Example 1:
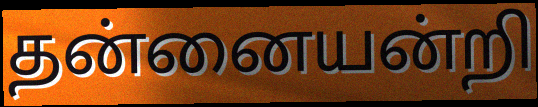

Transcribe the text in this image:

தன்னையன்றி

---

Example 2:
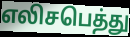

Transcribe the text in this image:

எலிசபெத்து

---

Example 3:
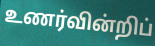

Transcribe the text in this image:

உணர்வின்றிப்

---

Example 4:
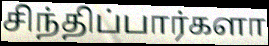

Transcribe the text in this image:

சிந்திப்பார்களா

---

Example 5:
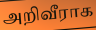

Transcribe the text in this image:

அறிவீராக